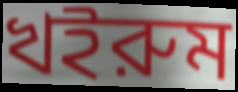
খইরুম